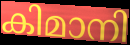
കിമാനി